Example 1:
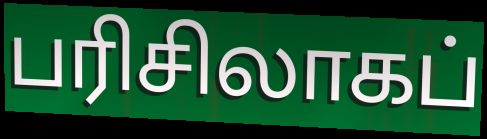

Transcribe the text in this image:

பரிசிலாகப்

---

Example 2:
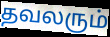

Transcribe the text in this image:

தவலரும்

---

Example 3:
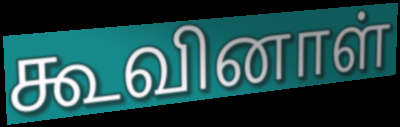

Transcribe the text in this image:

கூவினாள்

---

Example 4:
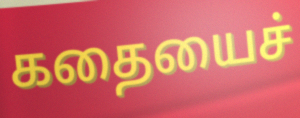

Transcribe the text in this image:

கதையைச்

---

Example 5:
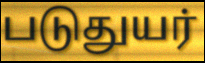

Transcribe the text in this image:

படுதுயர்